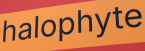
halophyte